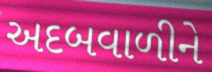
અદબવાળીને